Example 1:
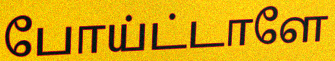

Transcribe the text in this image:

போய்ட்டாளே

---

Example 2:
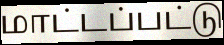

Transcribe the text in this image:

மாட்டப்பட்டு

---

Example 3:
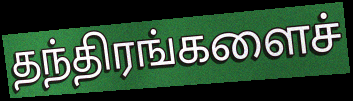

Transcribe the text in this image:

தந்திரங்களைச்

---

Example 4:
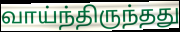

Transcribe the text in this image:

வாய்ந்திருந்தது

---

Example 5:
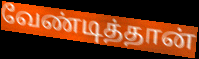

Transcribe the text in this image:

வேண்டித்தான்